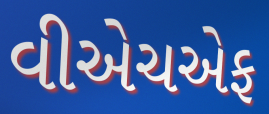
વીએચએફ